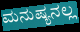
ಮನುಷ್ಯನಲ್ಲ